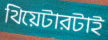
থিয়েটারটাই